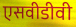
एसवीडीवी